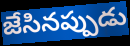
జేసినప్పుడు